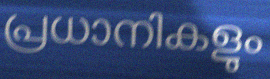
പ്രധാനികളും